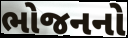
ભોજનનો